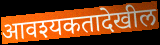
आवश्यकतादेखील